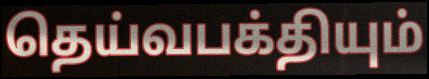
தெய்வபக்தியும்